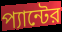
প্যান্টের